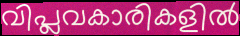
വിപ്ലവകാരികളിൽ